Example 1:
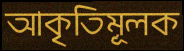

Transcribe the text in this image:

আকৃতিমূলক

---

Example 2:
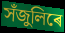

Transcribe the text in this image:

সঁজুলিৰে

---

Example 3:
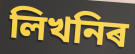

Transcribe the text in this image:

লিখনিৰ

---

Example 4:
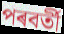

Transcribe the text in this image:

পৰবৰ্তী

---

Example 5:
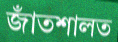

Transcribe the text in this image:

জাঁতশালত